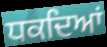
ਧਕਦਿਆਂ